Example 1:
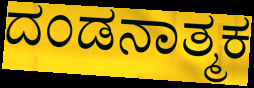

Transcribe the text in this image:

ದಂಡನಾತ್ಮಕ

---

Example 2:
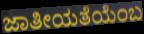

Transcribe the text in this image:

ಜಾತೀಯತೆಯೆಂಬ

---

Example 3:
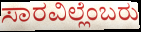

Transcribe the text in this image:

ಸಾರವಿಲ್ಲೆಂಬರು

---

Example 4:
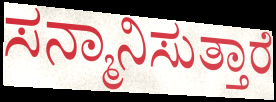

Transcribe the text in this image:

ಸನ್ಮಾನಿಸುತ್ತಾರೆ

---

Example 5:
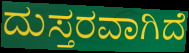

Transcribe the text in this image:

ದುಸ್ತರವಾಗಿದೆ